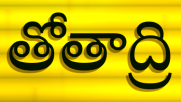
తోతాద్రి